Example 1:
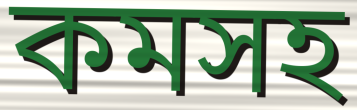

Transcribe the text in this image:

কমসহ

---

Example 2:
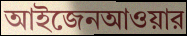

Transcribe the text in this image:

আইজেনআওয়ার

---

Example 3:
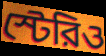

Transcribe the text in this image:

স্টেরিও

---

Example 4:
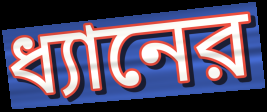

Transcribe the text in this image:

ধ্যানের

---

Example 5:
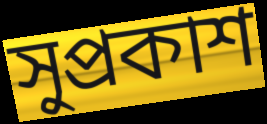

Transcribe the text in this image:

সুপ্রকাশ